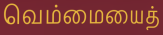
வெம்மையைத்